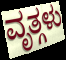
ವೃತ್ಗಳು